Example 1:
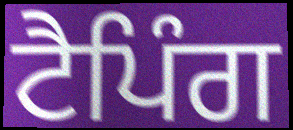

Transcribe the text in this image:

ਟੈਪਿੰਗ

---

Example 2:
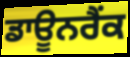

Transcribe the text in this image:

ਡਾਊਨਰੈਂਕ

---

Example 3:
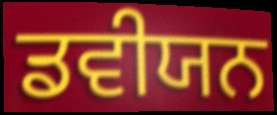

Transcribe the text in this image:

ਡਵੀਯਨ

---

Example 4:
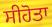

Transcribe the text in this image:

ਸੀਹੋਤਾ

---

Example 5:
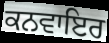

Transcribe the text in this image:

ਕਨਵਾਇਰ